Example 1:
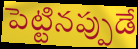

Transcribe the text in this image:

పెట్టినప్పుడే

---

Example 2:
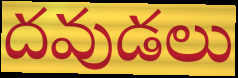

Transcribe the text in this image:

దవుడలు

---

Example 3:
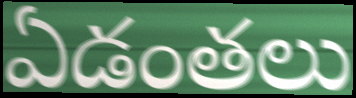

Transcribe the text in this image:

ఏడంతలు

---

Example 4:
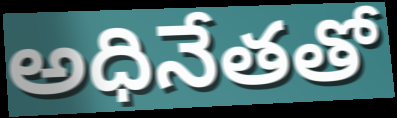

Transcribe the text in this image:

అధినేతతో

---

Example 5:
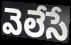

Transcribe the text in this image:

వెలేసే